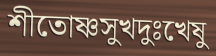
শীতোষ্ণসুখদুঃখেষু